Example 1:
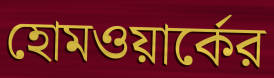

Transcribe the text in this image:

হোমওয়ার্কের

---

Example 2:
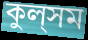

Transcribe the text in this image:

কুল্‌সম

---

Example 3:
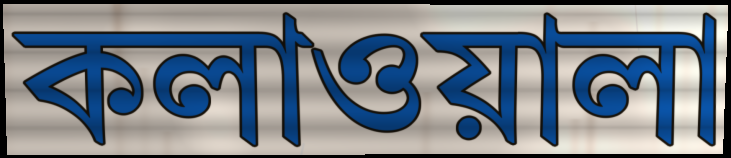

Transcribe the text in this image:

কলাওয়ালা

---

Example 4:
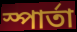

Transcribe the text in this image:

স্পার্তা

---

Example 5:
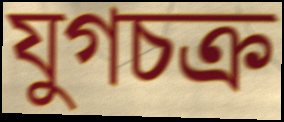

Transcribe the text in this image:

যুগচক্র